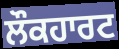
ਲੌਕਹਾਰਟ